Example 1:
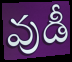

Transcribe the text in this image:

వుడీ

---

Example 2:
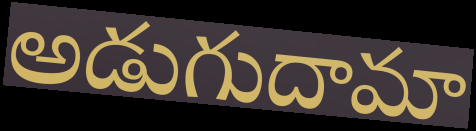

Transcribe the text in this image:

అడుగుదామా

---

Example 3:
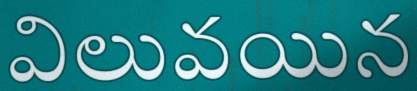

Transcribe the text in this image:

విలువయిన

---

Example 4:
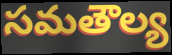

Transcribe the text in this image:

సమతౌల్య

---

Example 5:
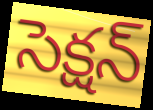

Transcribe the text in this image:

సెక్షన్